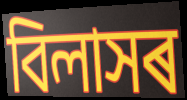
বিলাসৰ